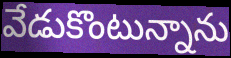
వేడుకొంటున్నాను